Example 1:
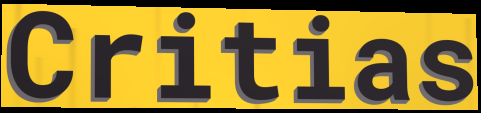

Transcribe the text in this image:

Critias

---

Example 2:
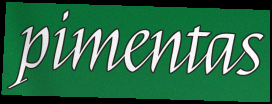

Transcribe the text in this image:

pimentas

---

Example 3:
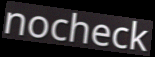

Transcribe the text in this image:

nocheck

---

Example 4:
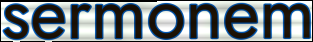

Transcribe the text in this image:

sermonem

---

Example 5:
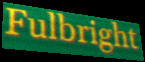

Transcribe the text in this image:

Fulbright